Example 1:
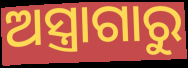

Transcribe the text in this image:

ଅସ୍ତ୍ରାଗାରୁ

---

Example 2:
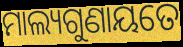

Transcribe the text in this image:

ମାଲ୍ୟଗୁଣାୟତେ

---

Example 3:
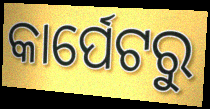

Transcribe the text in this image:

କାର୍ପେଟରୁ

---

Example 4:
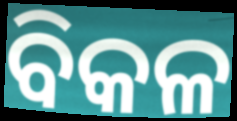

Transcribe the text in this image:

ବିକଳ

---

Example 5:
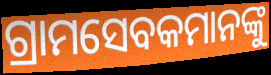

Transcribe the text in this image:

ଗ୍ରାମସେବକମାନଙ୍କୁ